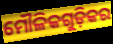
ମୌଳିକଗୁଡ଼ିକର